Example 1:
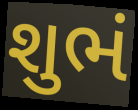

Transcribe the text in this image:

શુભં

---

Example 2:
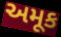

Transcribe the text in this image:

અમૂક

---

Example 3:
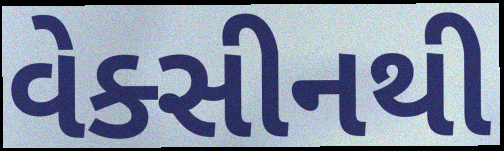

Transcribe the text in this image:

વેક્સીનથી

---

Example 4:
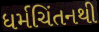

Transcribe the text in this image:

ધર્મચિંતનથી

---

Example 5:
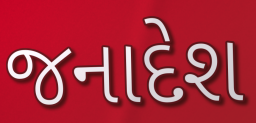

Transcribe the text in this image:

જનાદેશ